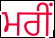
ਮਰੀਂ